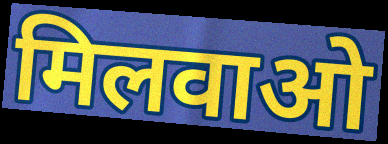
मिलवाओ